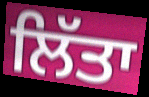
ਲਿੱਤਾ